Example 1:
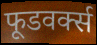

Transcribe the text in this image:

फूडवर्क्स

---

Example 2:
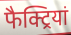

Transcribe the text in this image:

फैक्ट्रियां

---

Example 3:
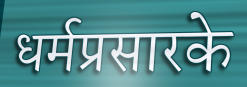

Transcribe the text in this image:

धर्मप्रसारके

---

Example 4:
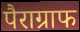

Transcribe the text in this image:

पैराग्राफ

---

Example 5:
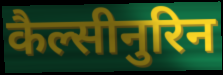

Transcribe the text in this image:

कैल्सीनुरिन